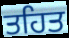
ਤਹਿਤ